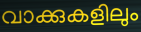
വാക്കുകളിലും